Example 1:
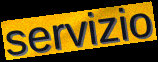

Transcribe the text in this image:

servizio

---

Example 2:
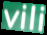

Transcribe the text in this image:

vili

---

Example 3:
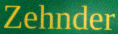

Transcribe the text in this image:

Zehnder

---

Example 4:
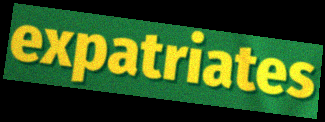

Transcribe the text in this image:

expatriates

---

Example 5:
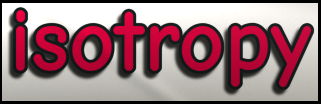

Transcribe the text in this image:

isotropy